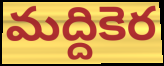
మద్దికెర